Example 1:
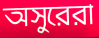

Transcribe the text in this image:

অসুরেরা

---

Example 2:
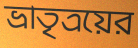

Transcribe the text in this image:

ভ্রাতৃত্রয়ের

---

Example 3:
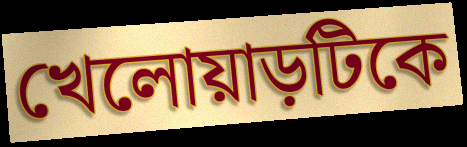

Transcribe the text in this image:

খেলোয়াড়টিকে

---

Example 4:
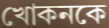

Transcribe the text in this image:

খোকনকে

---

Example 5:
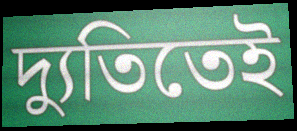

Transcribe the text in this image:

দ্যুতিতেই